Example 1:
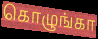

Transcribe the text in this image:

கொழுங்கா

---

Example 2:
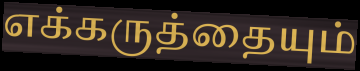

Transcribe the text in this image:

எக்கருத்தையும்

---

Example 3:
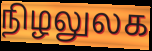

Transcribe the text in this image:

நிழலுலக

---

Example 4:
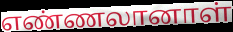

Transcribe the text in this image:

எண்ணலானாள்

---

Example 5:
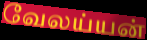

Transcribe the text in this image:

வேலய்யன்